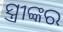
ସ୍ତ୍ରୀଙ୍କର